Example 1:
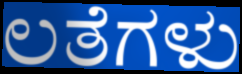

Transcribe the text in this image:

ಲತೆಗಳು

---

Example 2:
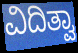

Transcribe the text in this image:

ವಿದಿತ್ವಾ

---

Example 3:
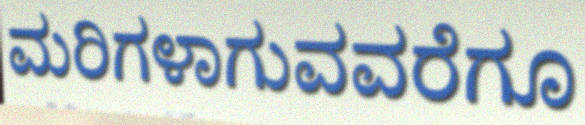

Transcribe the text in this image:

ಮರಿಗಳಾಗುವವರೆಗೂ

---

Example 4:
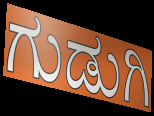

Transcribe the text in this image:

ಗುಡುಗಿ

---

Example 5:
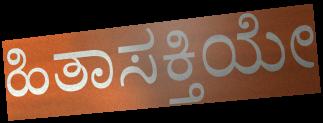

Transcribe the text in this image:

ಹಿತಾಸಕ್ತಿಯೇ